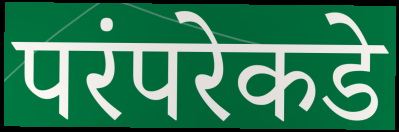
परंपरेकडे